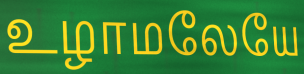
உழாமலேயே